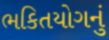
ભકિતયોગનું